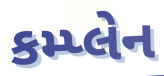
કમ્પ્લેન